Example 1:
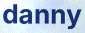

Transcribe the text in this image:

danny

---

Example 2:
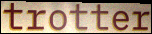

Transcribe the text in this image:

trotter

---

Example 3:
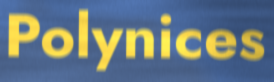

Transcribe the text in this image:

Polynices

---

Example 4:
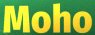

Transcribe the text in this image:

Moho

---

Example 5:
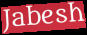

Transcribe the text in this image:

Jabesh